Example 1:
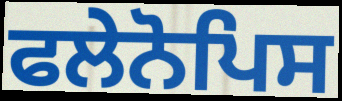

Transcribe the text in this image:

ਫਲੇਨੋਪਿਸ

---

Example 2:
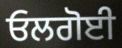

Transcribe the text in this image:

ਓਲਗੋਈ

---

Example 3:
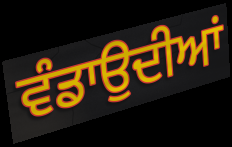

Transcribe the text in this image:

ਵੰਡਾਉਦੀਆਂ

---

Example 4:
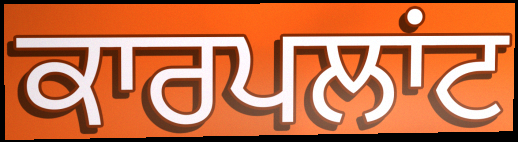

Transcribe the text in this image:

ਕਾਰਪਲਾਂਟ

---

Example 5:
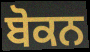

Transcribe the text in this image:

ਬੋਕਨ